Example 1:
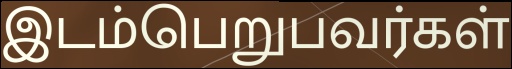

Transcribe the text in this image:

இடம்பெறுபவர்கள்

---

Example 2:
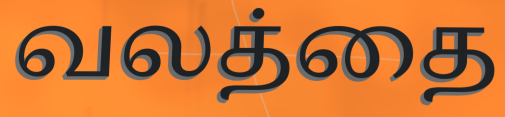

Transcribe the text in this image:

வலத்தை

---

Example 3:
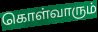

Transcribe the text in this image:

கொள்வாரும்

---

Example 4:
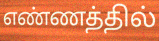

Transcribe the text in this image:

எண்ணத்தில்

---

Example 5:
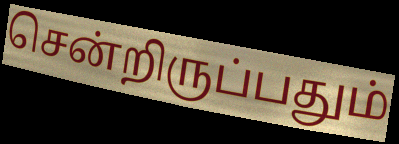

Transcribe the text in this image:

சென்றிருப்பதும்